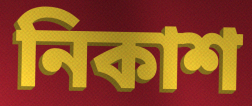
নিকাশ